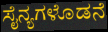
ಸೈನ್ಯಗಳೊಡನೆ